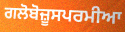
ਗਲੋਬੋਜ਼ੂਸਪਰਮੀਆ